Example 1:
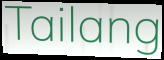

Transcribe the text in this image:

Tailang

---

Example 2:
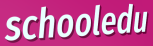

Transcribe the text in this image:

schooledu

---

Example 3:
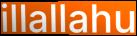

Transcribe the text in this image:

illallahu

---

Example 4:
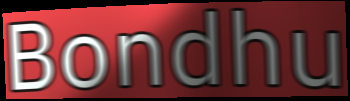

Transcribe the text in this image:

Bondhu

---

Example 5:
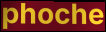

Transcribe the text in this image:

phoche